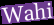
Wahi